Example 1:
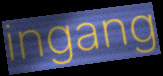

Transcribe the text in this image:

ingang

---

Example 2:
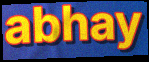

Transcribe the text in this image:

abhay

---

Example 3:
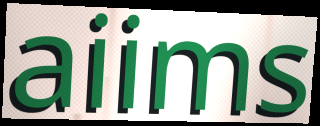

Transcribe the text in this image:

aiims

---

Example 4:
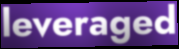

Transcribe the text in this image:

leveraged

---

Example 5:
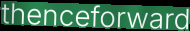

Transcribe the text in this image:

thenceforward